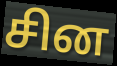
சின